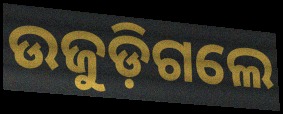
ଉଜୁଡ଼ିଗଲେ